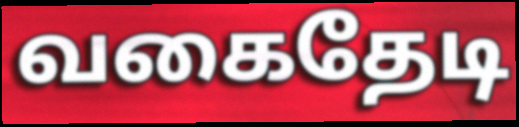
வகைதேடி